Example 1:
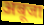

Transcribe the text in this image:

अबूजा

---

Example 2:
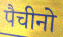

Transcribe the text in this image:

पैचीनो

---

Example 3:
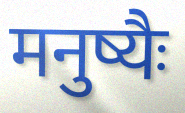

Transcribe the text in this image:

मनुष्यैः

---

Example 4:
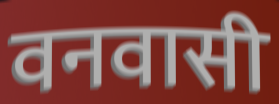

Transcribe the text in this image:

वनवासी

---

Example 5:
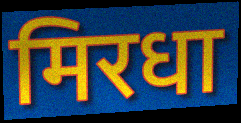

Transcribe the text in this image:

मिरधा